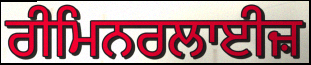
ਰੀਮਿਨਰਲਾਈਜ਼